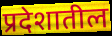
प्रदेशातील